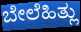
ಬೇಲೆಹಿತ್ಲು